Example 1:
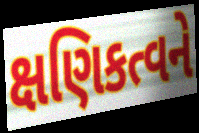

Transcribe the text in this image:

ક્ષણિકત્વને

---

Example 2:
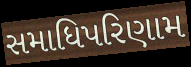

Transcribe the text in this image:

સમાધિપરિણામ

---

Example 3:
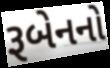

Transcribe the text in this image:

રૂબેનનો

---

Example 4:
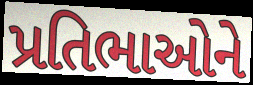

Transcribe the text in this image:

પ્રતિભાઓને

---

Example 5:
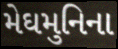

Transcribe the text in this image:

મેઘમુનિના